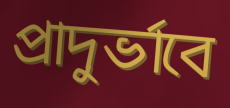
প্রাদুর্ভাবে